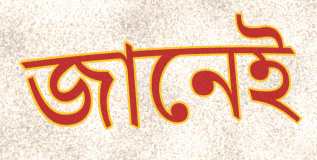
জানেই